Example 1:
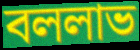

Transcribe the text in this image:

বললাভ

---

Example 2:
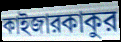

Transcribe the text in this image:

কাইজারকাকুর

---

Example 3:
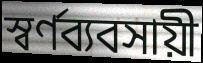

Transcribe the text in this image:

স্বর্ণব্যবসায়ী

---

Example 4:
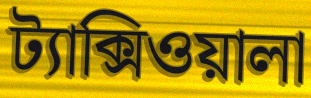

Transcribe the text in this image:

ট্যাক্সিওয়ালা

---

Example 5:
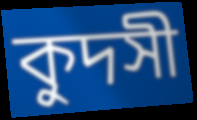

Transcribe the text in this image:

কুদসী